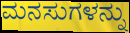
ಮನಸುಗಳನ್ನು